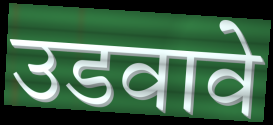
उडवावे